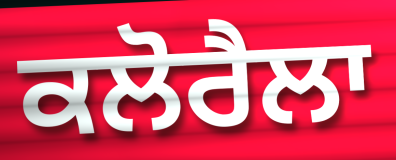
ਕਲੋਰੈਲਾ